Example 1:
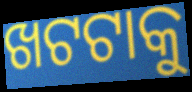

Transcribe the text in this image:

ଖଟଟାକୁ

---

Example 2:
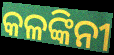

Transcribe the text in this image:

କଳଙ୍କିନୀ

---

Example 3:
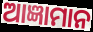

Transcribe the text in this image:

ଆଜ୍ଞାମାନ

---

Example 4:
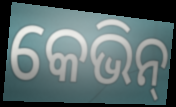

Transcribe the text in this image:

କେଭିନ୍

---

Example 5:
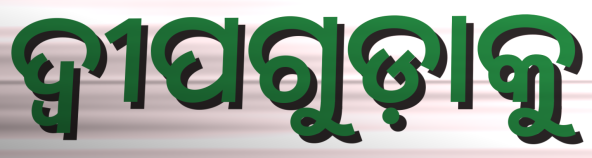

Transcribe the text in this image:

ଦ୍ୱୀପଗୁଡ଼ାକୁ